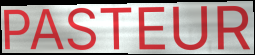
PASTEUR